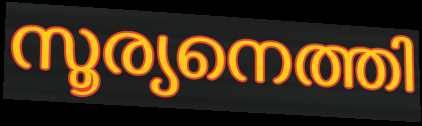
സൂര്യനെത്തി